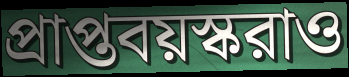
প্রাপ্তবয়স্করাও